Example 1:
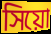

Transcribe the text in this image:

সিয়ো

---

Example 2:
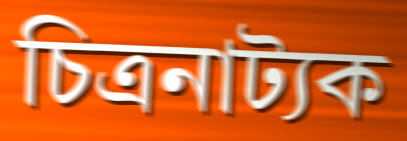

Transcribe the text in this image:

চিত্ৰনাট্যক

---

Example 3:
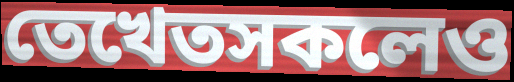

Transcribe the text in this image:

তেখেতসকলেও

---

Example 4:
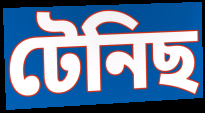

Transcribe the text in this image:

টেনিছ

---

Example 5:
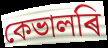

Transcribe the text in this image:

কেভালৰি